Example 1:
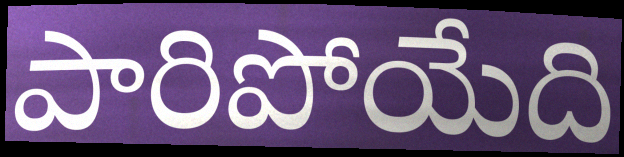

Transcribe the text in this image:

పారిపోయేది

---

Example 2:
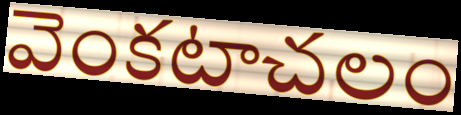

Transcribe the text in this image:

వెంకటాచలం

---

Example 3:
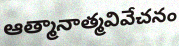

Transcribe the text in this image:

ఆత్మానాత్మవివేచనం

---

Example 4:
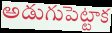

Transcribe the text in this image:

అడుగుపెట్టాక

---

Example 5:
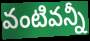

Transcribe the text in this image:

వంటివన్నీ